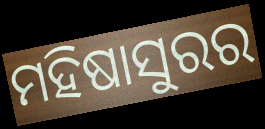
ମହିଷାସୁରର